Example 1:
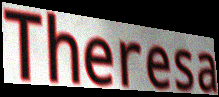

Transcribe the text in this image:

Theresa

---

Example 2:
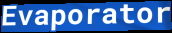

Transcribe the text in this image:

Evaporator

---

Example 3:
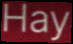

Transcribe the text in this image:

Hay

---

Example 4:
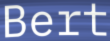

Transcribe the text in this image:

Bert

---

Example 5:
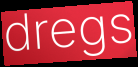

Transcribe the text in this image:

dregs